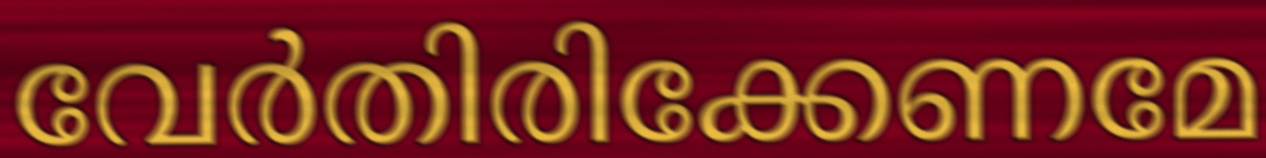
വേർതിരിക്കേണമേ